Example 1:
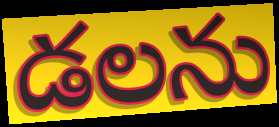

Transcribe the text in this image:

డలను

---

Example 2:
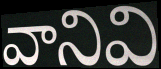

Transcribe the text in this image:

వానివి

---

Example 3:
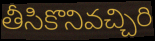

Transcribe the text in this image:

తీసికొనివచ్చిరి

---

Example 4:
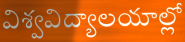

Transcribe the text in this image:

విశ్వవిద్యాలయాల్లో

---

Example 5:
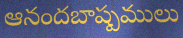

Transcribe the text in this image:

ఆనందబాష్పములు